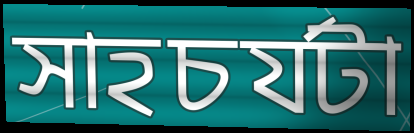
সাহচর্যটা